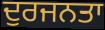
ਦੁਰਜਨਤਾ